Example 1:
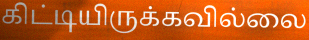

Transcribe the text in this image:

கிட்டியிருக்கவில்லை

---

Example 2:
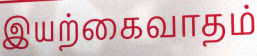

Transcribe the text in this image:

இயற்கைவாதம்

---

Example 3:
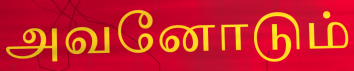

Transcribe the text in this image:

அவனோடும்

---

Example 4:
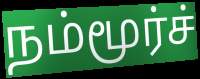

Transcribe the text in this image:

நம்மூர்ச்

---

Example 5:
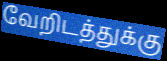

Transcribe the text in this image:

வேறிடத்துக்கு